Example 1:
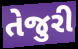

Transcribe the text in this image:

તેજુરી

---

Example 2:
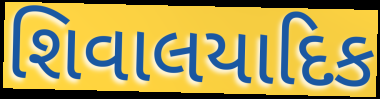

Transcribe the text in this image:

શિવાલયાદિક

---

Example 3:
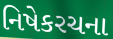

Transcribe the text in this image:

નિષેકરચના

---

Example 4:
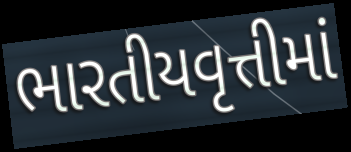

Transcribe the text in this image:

ભારતીયવૃત્તીમાં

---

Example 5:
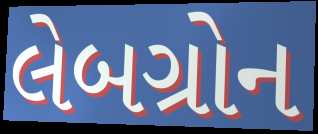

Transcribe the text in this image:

લેબગ્રોન